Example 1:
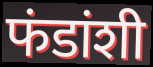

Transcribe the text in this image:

फंडांशी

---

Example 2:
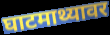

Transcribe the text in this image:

घाटमाथ्यावर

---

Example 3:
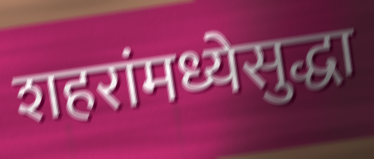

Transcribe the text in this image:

शहरांमध्येसुद्धा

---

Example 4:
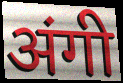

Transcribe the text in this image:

अंगी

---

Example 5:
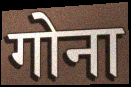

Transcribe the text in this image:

गोना